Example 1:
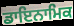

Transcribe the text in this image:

ਡਾਇਨਾਮਿਕ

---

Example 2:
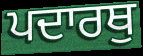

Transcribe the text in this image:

ਪਦਾਰਥੁ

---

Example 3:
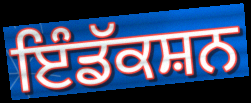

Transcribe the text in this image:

ਇੰਡੱਕਸ਼ਨ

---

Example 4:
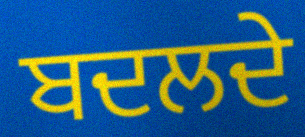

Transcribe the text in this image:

ਬਦਲਦੇ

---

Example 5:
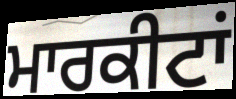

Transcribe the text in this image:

ਮਾਰਕੀਟਾਂ